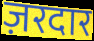
ज़रदार